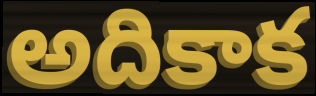
అదికాక